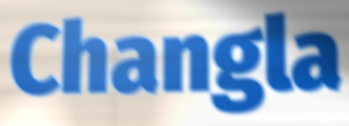
Changla